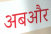
अबऔर